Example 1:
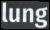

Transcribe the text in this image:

lung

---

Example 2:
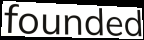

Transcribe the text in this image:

founded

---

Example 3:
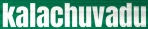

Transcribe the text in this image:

kalachuvadu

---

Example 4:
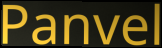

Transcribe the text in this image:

Panvel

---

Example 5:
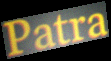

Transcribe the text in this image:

Patra